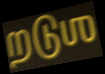
றடுஶ